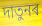
দাতুনৰ